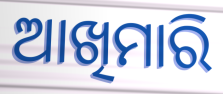
ଆଖିମାରି